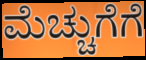
ಮೆಚ್ಚುಗೆಗೆ